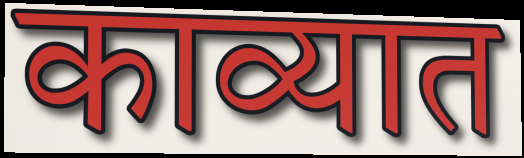
काव्यात